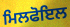
ਮਿਲਫੋਇਲ